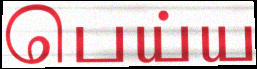
பெய்ய